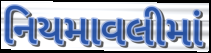
નિયમાવલીમાં